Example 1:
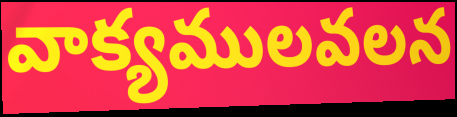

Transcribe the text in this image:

వాక్యములవలన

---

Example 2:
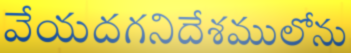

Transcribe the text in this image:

వేయదగనిదేశములోను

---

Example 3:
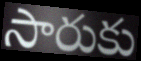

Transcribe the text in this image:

సారుకు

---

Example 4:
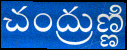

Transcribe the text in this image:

చంద్రుణ్ణి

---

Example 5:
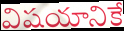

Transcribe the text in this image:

విషయానికే